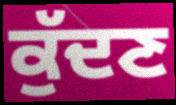
ਕੁੱਦਣ